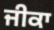
ਜੀਕਾ